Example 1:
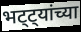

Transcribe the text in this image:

भट्ट्यांच्या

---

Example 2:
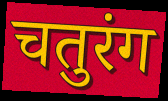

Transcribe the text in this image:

चतुरंग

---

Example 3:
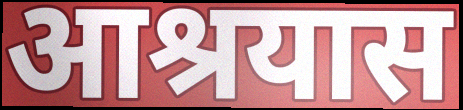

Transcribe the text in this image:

आश्रयास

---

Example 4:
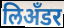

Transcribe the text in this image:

लिअँडर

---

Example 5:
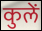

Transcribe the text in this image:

कुलें